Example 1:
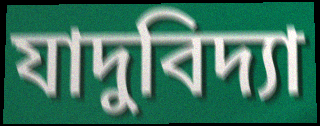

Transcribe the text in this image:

যাদুবিদ্যা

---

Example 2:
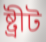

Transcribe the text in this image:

ষ্ট্ৰীট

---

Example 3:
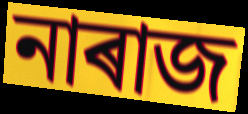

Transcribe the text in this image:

নাৰাজ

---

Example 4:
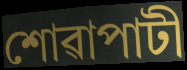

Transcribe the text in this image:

শোৱাপাটী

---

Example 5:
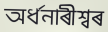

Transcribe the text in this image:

অৰ্ধনাৰীশ্বৰ